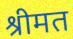
श्रीमत